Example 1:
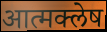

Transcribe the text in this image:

आत्मक्लेष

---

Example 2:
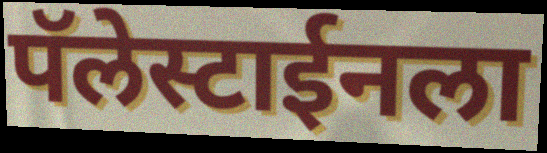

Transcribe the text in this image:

पॅलेस्टाईनला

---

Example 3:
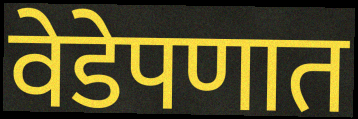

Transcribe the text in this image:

वेडेपणात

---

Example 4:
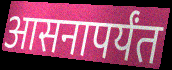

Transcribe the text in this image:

आसनापर्यंत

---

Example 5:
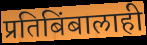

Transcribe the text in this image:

प्रतिबिंबालाही